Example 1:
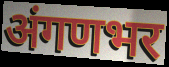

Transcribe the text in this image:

अंगणभर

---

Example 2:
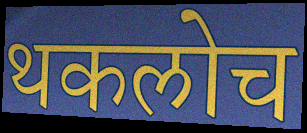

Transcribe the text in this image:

थकलोच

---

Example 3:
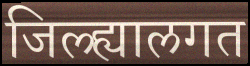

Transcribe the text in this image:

जिल्ह्यालगत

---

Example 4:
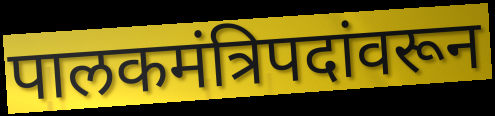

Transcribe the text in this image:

पालकमंत्रिपदांवरून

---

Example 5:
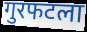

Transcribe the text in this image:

गुरफटला